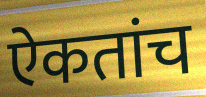
ऐकतांच